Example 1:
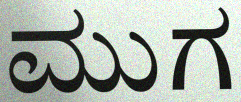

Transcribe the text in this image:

ಮುಗ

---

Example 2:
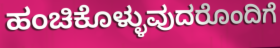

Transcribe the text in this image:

ಹಂಚಿಕೊಳ್ಳುವುದರೊಂದಿಗೆ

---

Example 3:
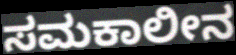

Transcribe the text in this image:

ಸಮಕಾಲೀನ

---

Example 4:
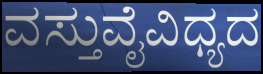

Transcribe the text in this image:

ವಸ್ತುವೈವಿಧ್ಯದ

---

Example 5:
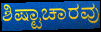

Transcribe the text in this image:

ಶಿಷ್ಟಾಚಾರವು